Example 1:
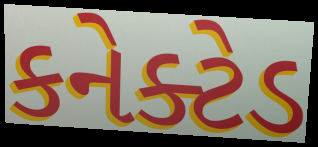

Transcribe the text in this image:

કનેક્ટેડ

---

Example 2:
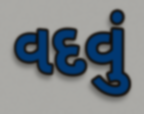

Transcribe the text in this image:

વદવું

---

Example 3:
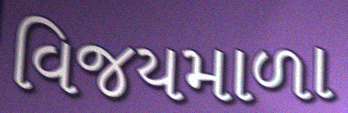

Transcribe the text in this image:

વિજયમાળા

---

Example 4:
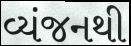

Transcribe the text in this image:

વ્યંજનથી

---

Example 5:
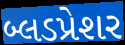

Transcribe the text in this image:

બ્લડપ્રેશર